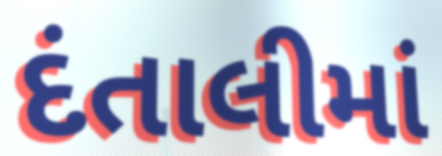
દંતાલીમાં